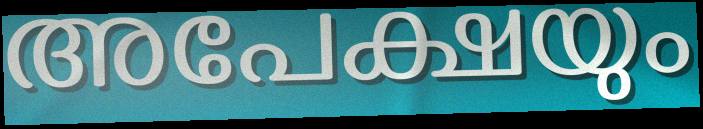
അപേക്ഷയും